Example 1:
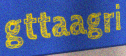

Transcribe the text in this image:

gttaagri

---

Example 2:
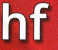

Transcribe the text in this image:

hf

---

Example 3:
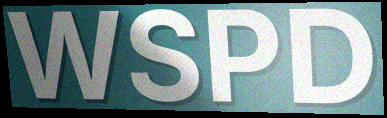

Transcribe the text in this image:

WSPD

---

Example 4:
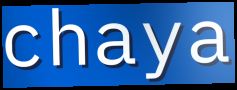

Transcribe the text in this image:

chaya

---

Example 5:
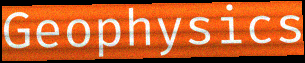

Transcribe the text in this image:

Geophysics